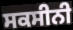
ਸਕਸੀਨੀ